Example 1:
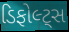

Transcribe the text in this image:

ડિફોલ્ટ્સ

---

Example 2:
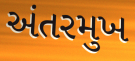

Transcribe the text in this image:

અંતરમુખ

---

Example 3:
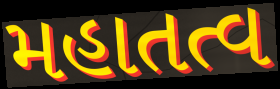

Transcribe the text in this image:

મહાતત્વ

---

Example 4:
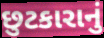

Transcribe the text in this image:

છુટકારાનું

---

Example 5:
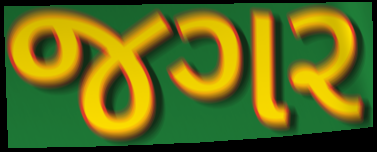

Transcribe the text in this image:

જગર